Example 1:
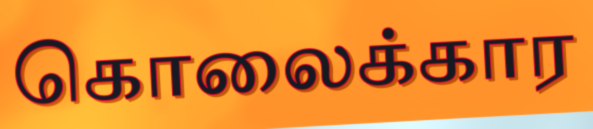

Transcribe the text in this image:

கொலைக்கார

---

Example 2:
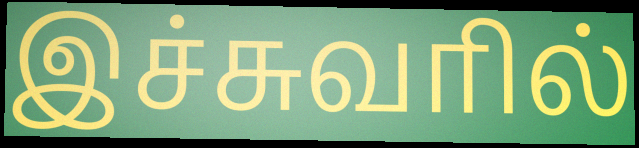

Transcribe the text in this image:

இச்சுவரில்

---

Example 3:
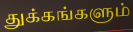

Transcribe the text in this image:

துக்கங்களும்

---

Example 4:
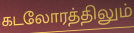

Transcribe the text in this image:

கடலோரத்திலும்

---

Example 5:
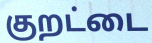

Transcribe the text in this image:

குறட்டை